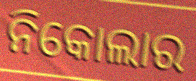
ନିକୋଲାର